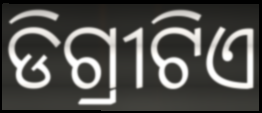
ଡିଗ୍ରୀଟିଏ